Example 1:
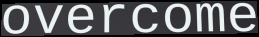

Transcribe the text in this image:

overcome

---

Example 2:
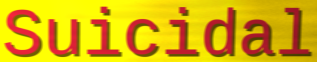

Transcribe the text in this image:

Suicidal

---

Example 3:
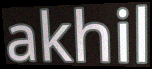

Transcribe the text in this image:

akhil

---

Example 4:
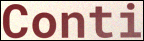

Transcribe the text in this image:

Conti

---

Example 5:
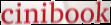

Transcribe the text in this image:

cinibook